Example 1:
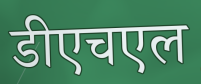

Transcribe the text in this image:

डीएचएल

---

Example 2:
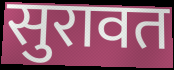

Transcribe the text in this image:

सुरावत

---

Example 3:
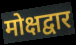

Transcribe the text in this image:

मोक्षद्वार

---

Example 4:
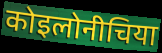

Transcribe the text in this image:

कोइलोनीचिया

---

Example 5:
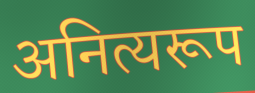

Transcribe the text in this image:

अनित्यरूप